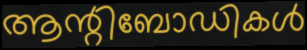
ആന്റിബോഡികൾ